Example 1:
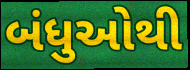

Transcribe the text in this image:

બંધુઓથી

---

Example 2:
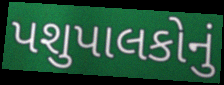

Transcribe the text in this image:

પશુપાલકોનું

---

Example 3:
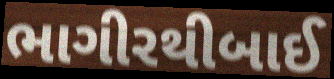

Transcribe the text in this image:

ભાગીરથીબાઈ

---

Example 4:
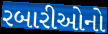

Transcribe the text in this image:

રબારીઓનો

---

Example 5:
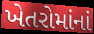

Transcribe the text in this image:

ખેતરોમાંનાં